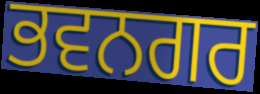
ਭਵਨਗਰ